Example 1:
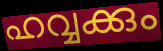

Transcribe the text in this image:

ഹവ്വക്കും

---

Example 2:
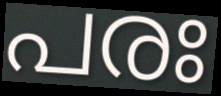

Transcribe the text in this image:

പരഃ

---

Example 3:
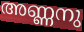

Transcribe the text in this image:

അണ്ണനു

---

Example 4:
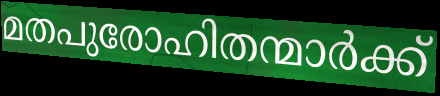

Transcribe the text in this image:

മതപുരോഹിതന്മാർക്ക്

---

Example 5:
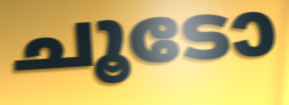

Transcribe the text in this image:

ചൂടോ